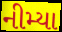
નીમ્યા